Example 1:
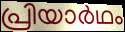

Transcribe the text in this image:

പ്രിയാർഥം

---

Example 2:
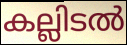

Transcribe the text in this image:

കല്ലിടൽ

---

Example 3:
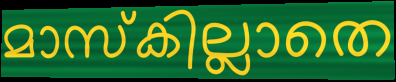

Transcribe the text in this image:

മാസ്കില്ലാതെ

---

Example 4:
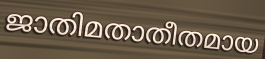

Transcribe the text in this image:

ജാതിമതാതീതമായ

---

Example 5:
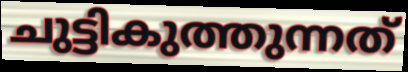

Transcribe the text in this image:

ചുട്ടികുത്തുന്നത്